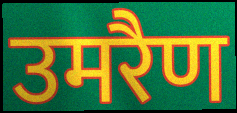
उमरैण